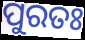
ପୁରତଃ